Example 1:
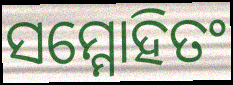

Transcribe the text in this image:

ସମ୍ମୋହିତଂ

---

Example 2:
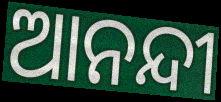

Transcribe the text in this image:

ଆନନ୍ଦୀ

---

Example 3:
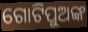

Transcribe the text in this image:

ଗୋଟିପୁଅଙ୍କ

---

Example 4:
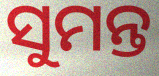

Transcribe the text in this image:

ସୁମନ୍ତ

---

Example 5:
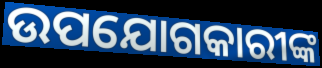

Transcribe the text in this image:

ଉପଯୋଗକାରୀଙ୍କ